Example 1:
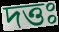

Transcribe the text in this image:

দত্তঃ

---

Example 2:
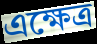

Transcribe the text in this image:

এক্ষেত্র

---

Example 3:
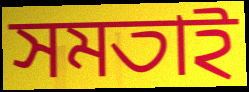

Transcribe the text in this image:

সমতাই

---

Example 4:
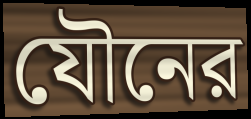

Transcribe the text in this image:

যৌনের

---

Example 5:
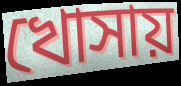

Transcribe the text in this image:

খোসায়